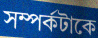
সম্পর্কটাকে